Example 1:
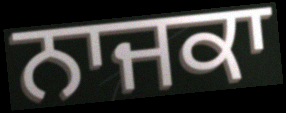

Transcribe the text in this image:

ਨਾਜਕਾ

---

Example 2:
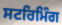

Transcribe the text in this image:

ਸਟਰਿਮਿੰਗ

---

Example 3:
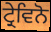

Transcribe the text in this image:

ਟ੍ਰੇਵਿਨੋ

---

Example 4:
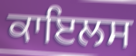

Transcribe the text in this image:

ਕਾਇਲਸ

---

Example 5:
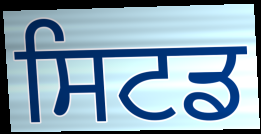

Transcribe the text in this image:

ਸਿਟਡ